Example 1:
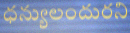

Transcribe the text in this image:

ధన్యులందురని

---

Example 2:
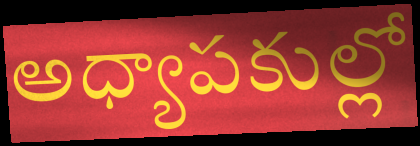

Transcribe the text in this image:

అధ్యాపకుల్లో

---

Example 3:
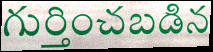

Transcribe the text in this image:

గుర్తించబడిన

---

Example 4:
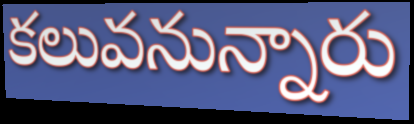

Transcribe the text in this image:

కలువనున్నారు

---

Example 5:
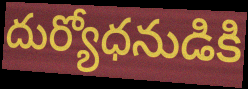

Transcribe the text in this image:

దుర్యోధనుడికి